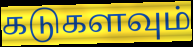
கடுகளவும்